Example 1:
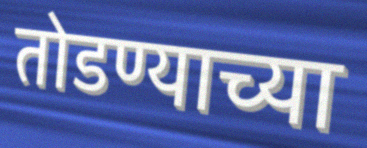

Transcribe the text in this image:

तोडण्याच्या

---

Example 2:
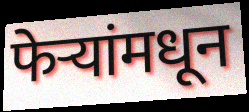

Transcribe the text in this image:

फेऱ्यांमधून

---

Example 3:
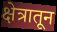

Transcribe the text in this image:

क्षेत्रातून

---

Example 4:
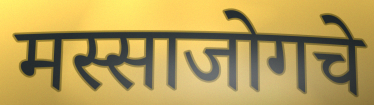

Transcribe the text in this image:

मस्साजोगचे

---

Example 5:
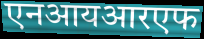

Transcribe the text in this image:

एनआयआरएफ